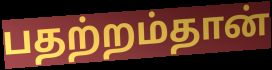
பதற்றம்தான்